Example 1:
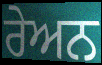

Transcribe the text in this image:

ਰੇਅਨ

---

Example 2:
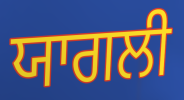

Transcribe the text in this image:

ਯਾਗਲੀ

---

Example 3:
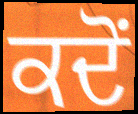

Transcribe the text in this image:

ਕਦੋਂ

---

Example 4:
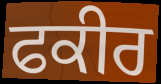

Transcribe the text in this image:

ਫਕੀਰ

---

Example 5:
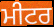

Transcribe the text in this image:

ਮੀਟਰ